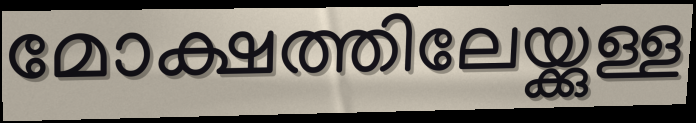
മോക്ഷത്തിലേയ്ക്കുള്ള